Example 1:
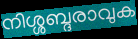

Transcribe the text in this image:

നിശ്ശബ്ദരാവുക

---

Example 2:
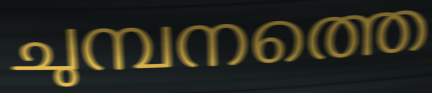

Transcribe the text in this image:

ചുമ്പനത്തെ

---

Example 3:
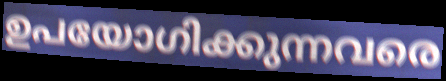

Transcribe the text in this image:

ഉപയോഗിക്കുന്നവരെ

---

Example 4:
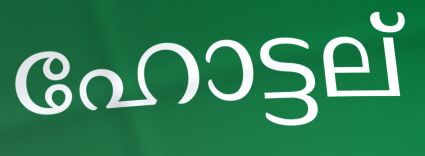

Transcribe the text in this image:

ഹോട്ടല്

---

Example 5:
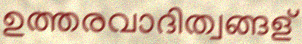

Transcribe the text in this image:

ഉത്തരവാദിത്വങ്ങള്